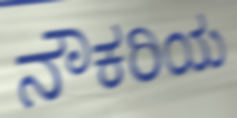
ನೌಕರಿಯ